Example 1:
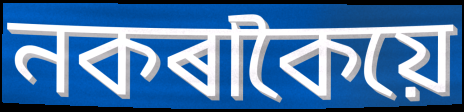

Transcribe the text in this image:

নকৰাকৈয়ে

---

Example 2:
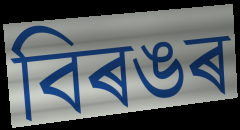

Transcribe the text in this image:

বিৰঙৰ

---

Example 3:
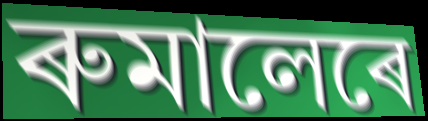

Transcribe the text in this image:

ৰুমালেৰে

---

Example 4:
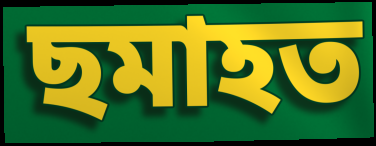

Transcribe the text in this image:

ছমাহত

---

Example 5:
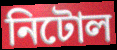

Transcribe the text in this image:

নিটোল